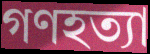
গণহত্যা